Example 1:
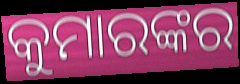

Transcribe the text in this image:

କୁମାରଙ୍କର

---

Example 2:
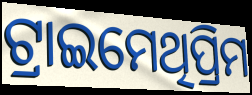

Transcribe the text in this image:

ଟ୍ରାଇମେଥିପ୍ରିମ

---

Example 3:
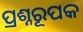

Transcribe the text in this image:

ପ୍ରଶ୍ନରୂପକ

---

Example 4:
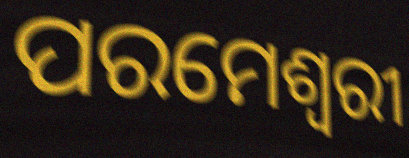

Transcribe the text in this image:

ପରମେଶ୍ୱରୀ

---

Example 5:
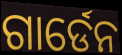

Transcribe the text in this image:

ଗାର୍ଡେନ